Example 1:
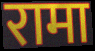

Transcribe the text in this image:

रामा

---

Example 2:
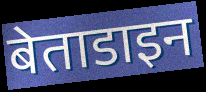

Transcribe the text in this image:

बेताडाइन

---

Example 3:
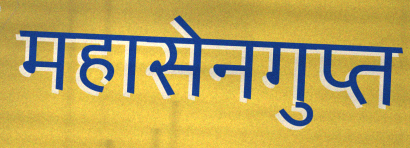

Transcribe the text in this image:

महासेनगुप्त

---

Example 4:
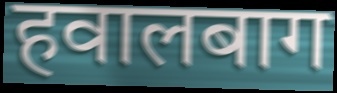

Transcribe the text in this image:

हवालबाग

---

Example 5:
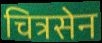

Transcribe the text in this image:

चित्रसेन